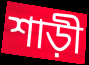
শাড়ী